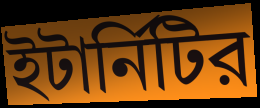
ইটার্নিটির